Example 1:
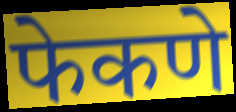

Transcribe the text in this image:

फेकणे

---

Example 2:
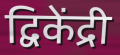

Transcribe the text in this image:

द्विकेंद्री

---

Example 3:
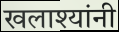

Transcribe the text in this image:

खलाश्यांनी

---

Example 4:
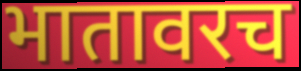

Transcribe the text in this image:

भातावरच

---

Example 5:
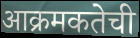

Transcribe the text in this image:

आक्रमकतेची